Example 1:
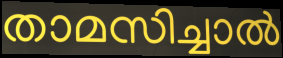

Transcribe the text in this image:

താമസിച്ചാൽ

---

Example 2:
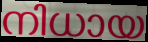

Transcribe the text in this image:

നിധായ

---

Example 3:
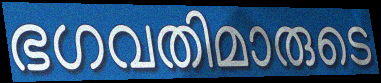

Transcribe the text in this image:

ഭഗവതിമാരുടെ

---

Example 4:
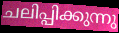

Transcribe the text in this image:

ചലിപ്പിക്കുന്നു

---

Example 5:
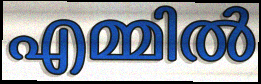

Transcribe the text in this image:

എമ്മിൽ